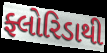
ફ્લોરિડાથી